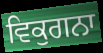
ਵਿਕੁਗਨਾ